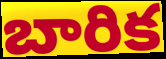
బారిక